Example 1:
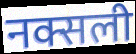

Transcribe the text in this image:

नक्सली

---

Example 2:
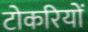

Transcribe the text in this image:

टोकरियों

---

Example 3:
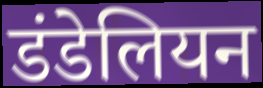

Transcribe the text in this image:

डंडेलियन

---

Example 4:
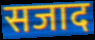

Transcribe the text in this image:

सजाद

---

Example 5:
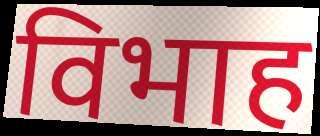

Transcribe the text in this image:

विभाह